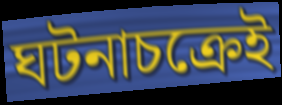
ঘটনাচক্রেই